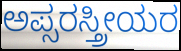
ಅಪ್ಸರಸ್ತ್ರೀಯರ